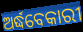
ଅର୍ଦ୍ଧବେକାରୀ